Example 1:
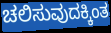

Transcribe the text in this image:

ಚಲಿಸುವುದಕ್ಕಿಂತ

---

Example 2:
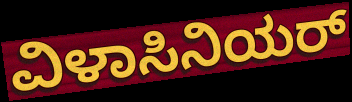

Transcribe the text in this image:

ವಿಳಾಸಿನಿಯರ್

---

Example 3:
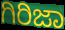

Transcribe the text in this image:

ಗಿರಿಜಾ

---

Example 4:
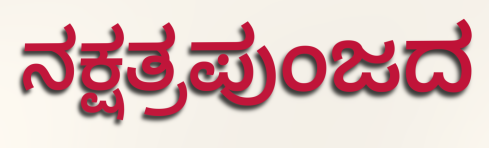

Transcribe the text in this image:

ನಕ್ಷತ್ರಪುಂಜದ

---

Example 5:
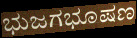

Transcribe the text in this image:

ಭುಜಗಭೂಷಣ